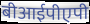
बीआईपीएपी